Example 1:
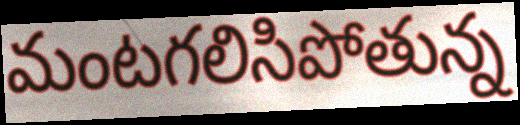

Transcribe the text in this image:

మంటగలిసిపోతున్న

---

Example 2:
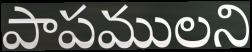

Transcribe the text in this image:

పాపములని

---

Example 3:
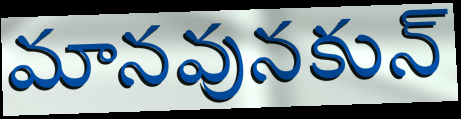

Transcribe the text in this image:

మానవునకున్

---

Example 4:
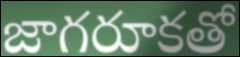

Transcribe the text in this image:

జాగరూకతో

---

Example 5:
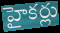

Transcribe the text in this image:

హైకర్లు